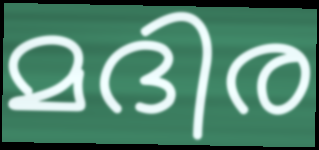
മദിര